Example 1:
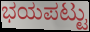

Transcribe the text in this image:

ಭಯಪಟ್ಟು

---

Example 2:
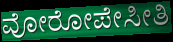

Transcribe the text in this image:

ವೋರೋಪೇಸೀತಿ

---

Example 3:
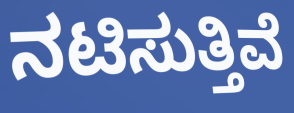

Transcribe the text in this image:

ನಟಿಸುತ್ತಿವೆ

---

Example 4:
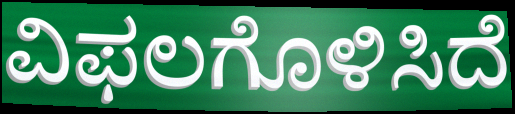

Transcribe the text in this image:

ವಿಫಲಗೊಳಿಸಿದೆ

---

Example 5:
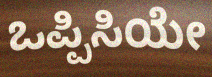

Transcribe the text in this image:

ಒಪ್ಪಿಸಿಯೇ